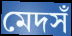
মেদসঁ